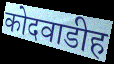
कोदवाडीह